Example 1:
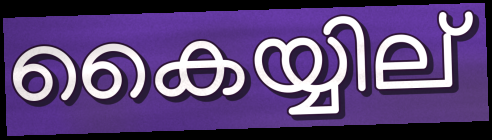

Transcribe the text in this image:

കൈയ്യില്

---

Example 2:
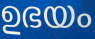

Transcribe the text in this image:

ഉഭയം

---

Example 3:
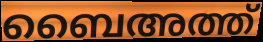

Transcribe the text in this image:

ബൈഅത്ത്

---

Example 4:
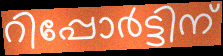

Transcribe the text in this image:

റിപ്പോർട്ടിന്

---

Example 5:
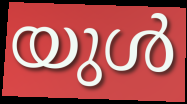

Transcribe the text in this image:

യുൾ